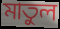
মাতুল